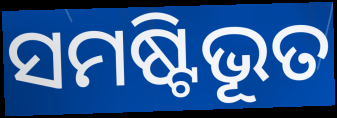
ସମଷ୍ଟିଭୂତ